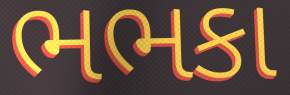
ભભકા